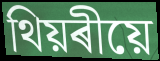
থিয়ৰীয়ে